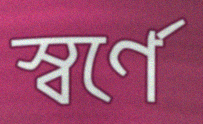
স্বর্ণে